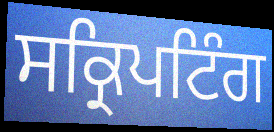
ਸਕ੍ਰਿਪਟਿੰਗ